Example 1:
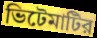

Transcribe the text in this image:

ভিটেমাটির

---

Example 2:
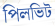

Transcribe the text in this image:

পিলভিট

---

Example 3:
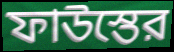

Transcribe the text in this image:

ফাউস্তের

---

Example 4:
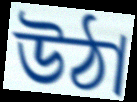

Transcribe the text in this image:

উঠা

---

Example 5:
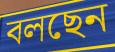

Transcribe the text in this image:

বলছেন